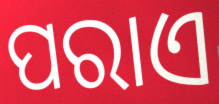
ପରାଏ